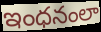
ఇంధనంలా